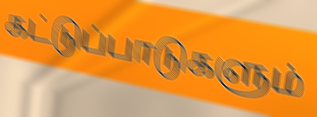
கட்டுப்பாடுகளும்